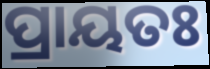
ପ୍ରାୟତଃ